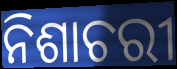
ନିଶାଚରୀ